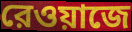
রেওয়াজে